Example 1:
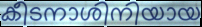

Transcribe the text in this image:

കീടനാശിനിയായ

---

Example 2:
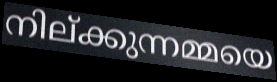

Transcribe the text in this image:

നില്ക്കുന്നമ്മയെ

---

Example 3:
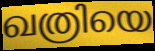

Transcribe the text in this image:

ഖത്രിയെ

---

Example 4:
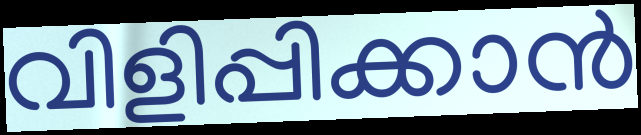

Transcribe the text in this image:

വിളിപ്പിക്കാൻ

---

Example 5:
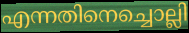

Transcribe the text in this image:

എന്നതിനെച്ചൊല്ലി